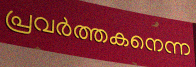
പ്രവർത്തകനെന്ന